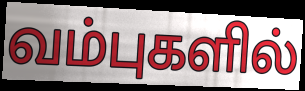
வம்புகளில்